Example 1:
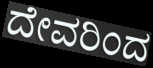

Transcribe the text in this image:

ದೇವರಿಂದ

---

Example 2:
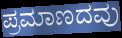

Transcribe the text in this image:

ಪ್ರಮಾಣದವು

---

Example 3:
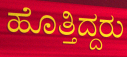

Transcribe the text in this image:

ಹೊತ್ತಿದ್ದರು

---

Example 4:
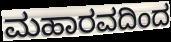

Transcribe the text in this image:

ಮಹಾರವದಿಂದ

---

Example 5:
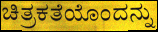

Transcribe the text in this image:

ಚಿತ್ರಕತೆಯೊಂದನ್ನು